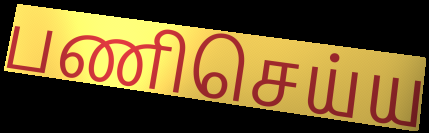
பணிசெய்ய